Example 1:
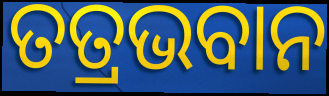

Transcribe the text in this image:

ତତ୍ରଭବାନ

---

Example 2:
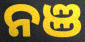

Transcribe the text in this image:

ନଞ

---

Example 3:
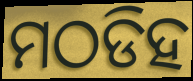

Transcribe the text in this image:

ମଠଡିହ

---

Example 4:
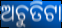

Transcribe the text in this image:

ଅଚୁତିଟା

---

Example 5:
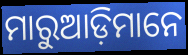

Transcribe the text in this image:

ମାରୁଆଡ଼ିମାନେ